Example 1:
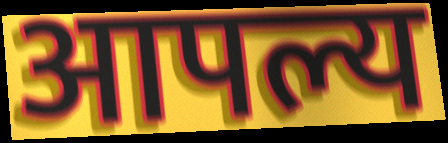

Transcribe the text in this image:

आपल्य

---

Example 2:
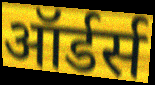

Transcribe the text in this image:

ऑर्डर्स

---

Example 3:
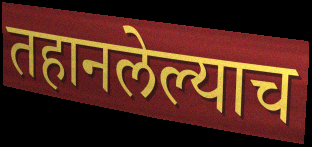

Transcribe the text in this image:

तहानलेल्याच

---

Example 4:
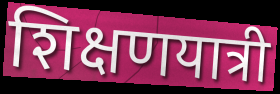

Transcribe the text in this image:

शिक्षणयात्री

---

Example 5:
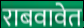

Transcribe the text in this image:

राबवावेत